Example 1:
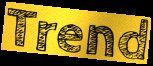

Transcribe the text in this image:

Trend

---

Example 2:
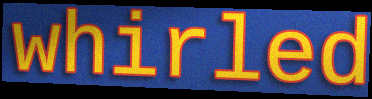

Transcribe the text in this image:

whirled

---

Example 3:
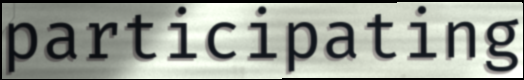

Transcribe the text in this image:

participating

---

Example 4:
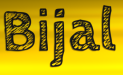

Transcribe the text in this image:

Bijal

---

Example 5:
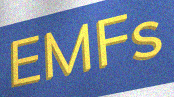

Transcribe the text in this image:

EMFs